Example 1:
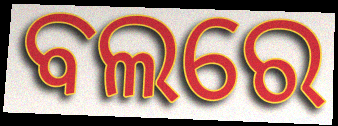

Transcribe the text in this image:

ବଲରେ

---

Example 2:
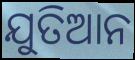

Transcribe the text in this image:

ଯୁତିଆନ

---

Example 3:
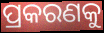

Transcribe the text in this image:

ପ୍ରକରଣକୁ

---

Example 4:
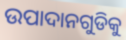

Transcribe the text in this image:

ଉପାଦାନଗୁଡିକୁ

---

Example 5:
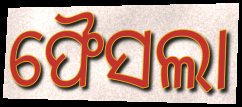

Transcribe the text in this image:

ଫୈସଲା